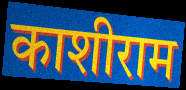
काशीराम